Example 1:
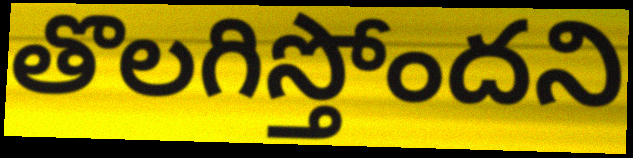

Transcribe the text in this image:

తొలగిస్తోందని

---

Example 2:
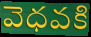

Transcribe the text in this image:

వెధవకి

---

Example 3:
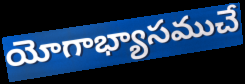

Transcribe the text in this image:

యోగాభ్యాసముచే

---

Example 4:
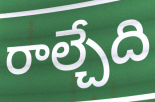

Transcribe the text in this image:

రాల్చేది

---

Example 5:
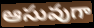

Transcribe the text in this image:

ఆసువుగా